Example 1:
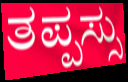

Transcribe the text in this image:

ತಪ್ಪಸ್ಸು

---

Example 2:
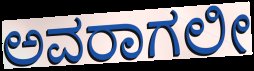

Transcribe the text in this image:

ಅವರಾಗಲೀ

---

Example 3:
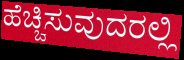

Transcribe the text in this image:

ಹೆಚ್ಚಿಸುವುದರಲ್ಲಿ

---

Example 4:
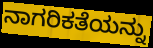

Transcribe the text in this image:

ನಾಗರಿಕತೆಯನ್ನು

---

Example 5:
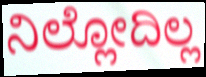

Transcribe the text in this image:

ನಿಲ್ಲೋದಿಲ್ಲ